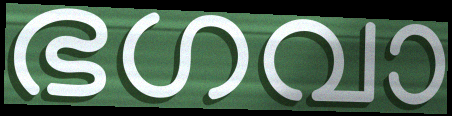
ഭഗവാ